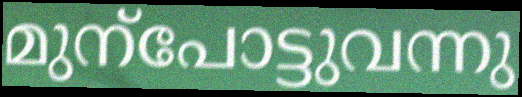
മുന്പോട്ടുവന്നു